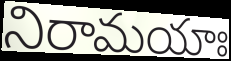
నిరామయాః